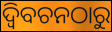
ଦ୍ବିବଚନଠାରୁ